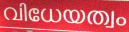
വിധേയത്വം